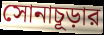
সোনাচূড়ার